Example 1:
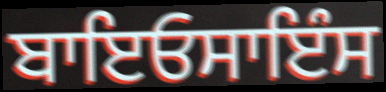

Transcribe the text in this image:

ਬਾਇਓਸਾਇੰਸ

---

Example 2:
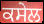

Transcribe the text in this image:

ਕਸੇਲ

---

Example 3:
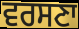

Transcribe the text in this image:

ਵਰਸਣਾ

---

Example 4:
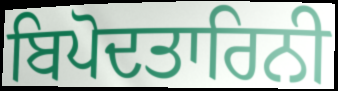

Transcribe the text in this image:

ਬਿਪੋਦਤਾਰਿਨੀ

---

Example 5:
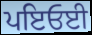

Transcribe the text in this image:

ਪਇਓਈ